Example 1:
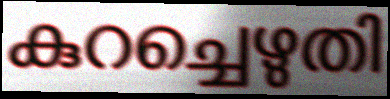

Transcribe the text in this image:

കുറച്ചെഴുതി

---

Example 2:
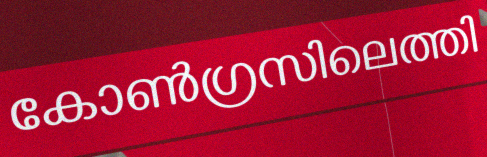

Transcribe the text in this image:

കോൺഗ്രസിലെത്തി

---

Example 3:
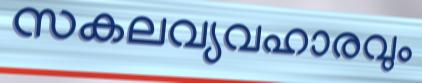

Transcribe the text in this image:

സകലവ്യവഹാരവും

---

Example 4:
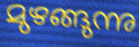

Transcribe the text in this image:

മുഴങ്ങുന്നു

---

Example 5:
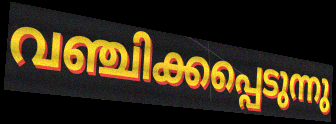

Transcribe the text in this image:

വഞ്ചിക്കപ്പെടുന്നു